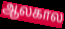
ஆலகால